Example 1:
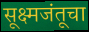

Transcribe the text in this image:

सूक्ष्मजंतूचा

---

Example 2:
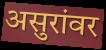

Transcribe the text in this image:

असुरांवर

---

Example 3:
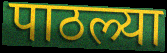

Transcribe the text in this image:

पाठल्या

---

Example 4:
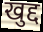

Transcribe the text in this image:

खुद्द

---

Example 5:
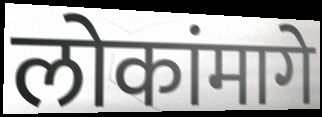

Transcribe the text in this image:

लोकांमागे